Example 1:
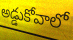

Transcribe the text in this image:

అడ్డుకోవాలో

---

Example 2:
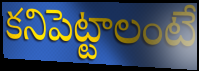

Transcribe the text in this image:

కనిపెట్టాలంటే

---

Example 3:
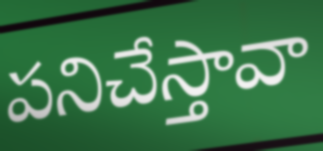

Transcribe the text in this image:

పనిచేస్తావా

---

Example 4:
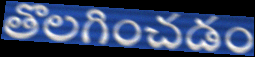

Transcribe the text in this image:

తొలగించడం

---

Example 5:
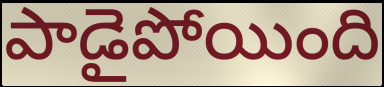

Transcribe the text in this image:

పాడైపోయింది